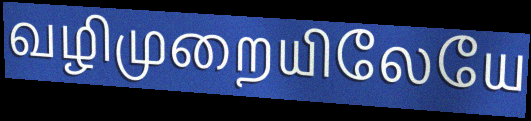
வழிமுறையிலேயே